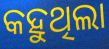
କହୁଥିଲା